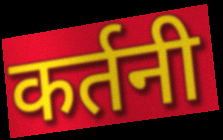
कर्तनी